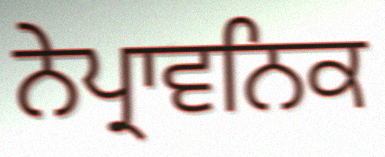
ਨੇਪ੍ਰਾਵਨਿਕ